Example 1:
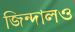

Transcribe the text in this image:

জিন্দালও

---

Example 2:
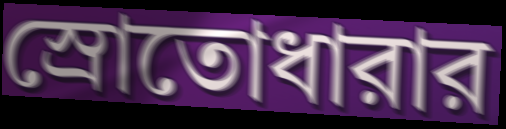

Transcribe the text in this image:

স্রোতোধারার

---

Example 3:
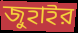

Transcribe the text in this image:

জুহাইর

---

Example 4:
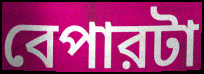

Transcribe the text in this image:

বেপারটা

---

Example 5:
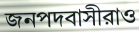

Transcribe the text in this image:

জনপদবাসীরাও